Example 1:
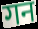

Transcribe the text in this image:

गन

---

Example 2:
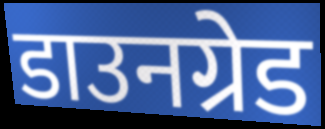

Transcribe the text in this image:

डाउनग्रेड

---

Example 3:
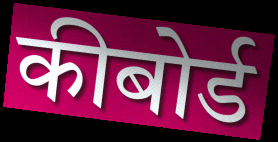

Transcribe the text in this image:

कीबोर्ड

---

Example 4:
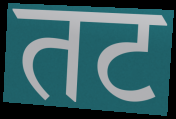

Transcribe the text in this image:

तट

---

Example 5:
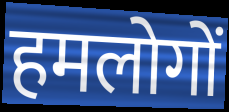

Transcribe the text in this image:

हमलोगों